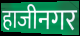
हाजीनगर